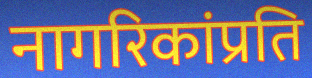
नागरिकांप्रति